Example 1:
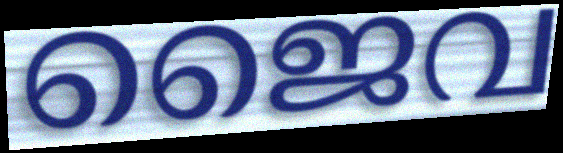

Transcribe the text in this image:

ജൈവ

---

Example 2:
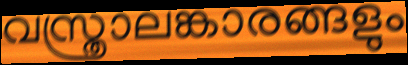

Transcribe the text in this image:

വസ്ത്രാലങ്കാരങ്ങളും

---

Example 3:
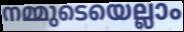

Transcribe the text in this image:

നമ്മുടെയെല്ലാം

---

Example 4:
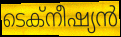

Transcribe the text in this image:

ടെക്നീഷ്യൻ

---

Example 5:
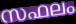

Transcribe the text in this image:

സഫലം